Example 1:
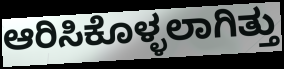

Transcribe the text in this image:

ಆರಿಸಿಕೊಳ್ಳಲಾಗಿತ್ತು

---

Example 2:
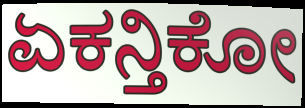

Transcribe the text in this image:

ಏಕನ್ತಿಕೋ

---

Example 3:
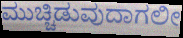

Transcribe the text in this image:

ಮುಚ್ಚಿಡುವುದಾಗಲೀ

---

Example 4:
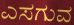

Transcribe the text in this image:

ಎಸಗುವ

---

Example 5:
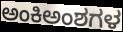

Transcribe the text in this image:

ಅಂಕಿಅಂಶಗಳ